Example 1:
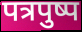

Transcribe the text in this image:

पत्रपुष्प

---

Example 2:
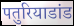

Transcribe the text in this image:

पतुरियाडांड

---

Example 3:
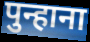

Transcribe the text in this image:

पुन्हाना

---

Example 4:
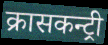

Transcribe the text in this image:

क्रासकन्ट्री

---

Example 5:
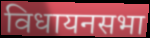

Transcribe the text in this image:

विधायनसभा